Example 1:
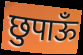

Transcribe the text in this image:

छुपाऊँ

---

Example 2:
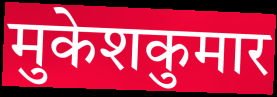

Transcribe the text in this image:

मुकेशकुमार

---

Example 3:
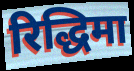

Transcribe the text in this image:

रिद्धिमा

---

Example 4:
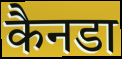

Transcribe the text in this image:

कैनडा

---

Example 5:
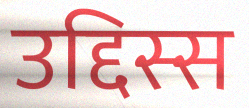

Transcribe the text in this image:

उद्दिस्स